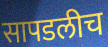
सापडलीच